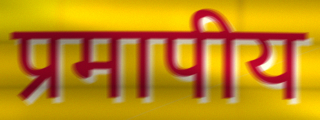
प्रमापीय